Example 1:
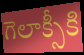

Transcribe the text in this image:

గెలాక్సీకి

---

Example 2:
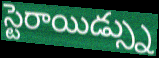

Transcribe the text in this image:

స్టెరాయిడ్స్ను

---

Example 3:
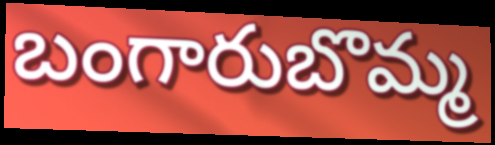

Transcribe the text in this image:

బంగారుబొమ్మ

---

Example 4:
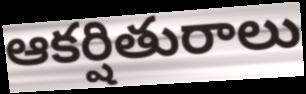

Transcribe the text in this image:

ఆకర్షితురాలు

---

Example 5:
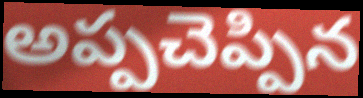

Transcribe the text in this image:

అప్పచెప్పిన